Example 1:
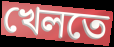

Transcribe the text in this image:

খেলতে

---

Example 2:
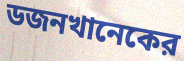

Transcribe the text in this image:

ডজনখানেকের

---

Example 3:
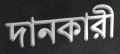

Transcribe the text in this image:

দানকারী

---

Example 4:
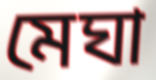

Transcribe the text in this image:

মেঘা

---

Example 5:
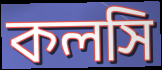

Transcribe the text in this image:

কলসি